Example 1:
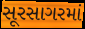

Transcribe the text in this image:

સૂરસાગરમાં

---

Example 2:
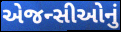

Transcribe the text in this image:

એજન્સીઓનું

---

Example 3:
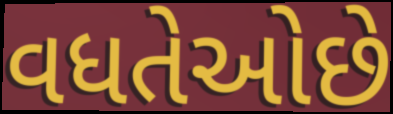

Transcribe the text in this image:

વધતેઓછે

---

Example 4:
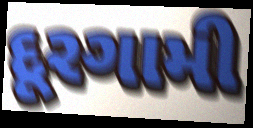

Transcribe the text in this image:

દૂરગામી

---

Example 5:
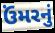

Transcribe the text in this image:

ઉંમરનું